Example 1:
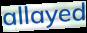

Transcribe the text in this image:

allayed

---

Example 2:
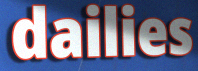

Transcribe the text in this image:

dailies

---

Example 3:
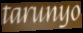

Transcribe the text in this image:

tarunyo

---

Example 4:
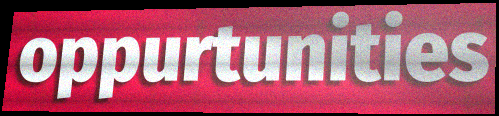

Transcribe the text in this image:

oppurtunities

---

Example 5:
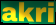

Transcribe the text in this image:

akri